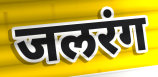
जलरंग